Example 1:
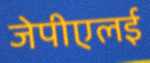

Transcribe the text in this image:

जेपीएलई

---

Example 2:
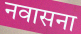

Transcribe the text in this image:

नवासना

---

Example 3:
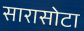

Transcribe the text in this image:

सारासोटा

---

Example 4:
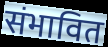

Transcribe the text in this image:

संभावित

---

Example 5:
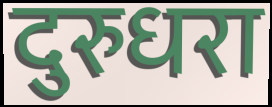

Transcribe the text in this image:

दुरुधरा